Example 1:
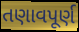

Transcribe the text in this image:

તણાવપૂર્ણ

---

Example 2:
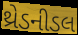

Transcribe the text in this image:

થ્રેડનીડલ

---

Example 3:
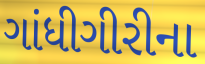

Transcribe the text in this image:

ગાંધીગીરીના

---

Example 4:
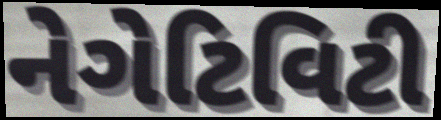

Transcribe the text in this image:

નેગેટિવિટી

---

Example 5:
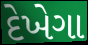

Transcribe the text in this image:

દેખેગા